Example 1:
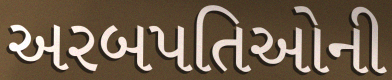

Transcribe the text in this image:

અરબપતિઓની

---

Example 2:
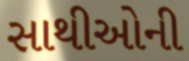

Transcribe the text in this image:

સાથીઓની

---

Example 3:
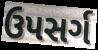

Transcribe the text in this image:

ઉપસર્ગ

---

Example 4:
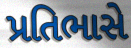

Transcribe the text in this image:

પ્રતિભાસે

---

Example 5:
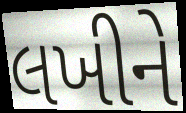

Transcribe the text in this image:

લખીને